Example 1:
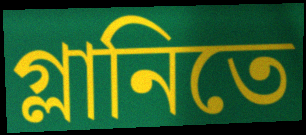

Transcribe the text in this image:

গ্লানিতে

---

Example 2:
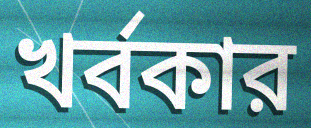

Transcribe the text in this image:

খর্বকার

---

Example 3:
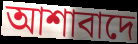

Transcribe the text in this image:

আশাবাদে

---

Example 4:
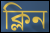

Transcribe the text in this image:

ক্লিন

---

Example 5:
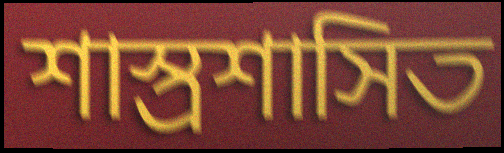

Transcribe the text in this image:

শাস্ত্রশাসিত